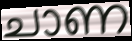
ചാണ